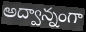
అద్వాన్నంగా